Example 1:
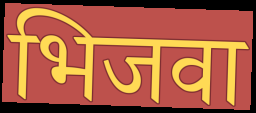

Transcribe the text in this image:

भिजवा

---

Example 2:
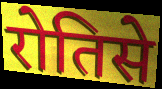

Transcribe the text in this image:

रोतिसे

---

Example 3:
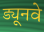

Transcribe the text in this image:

ड्यूनवे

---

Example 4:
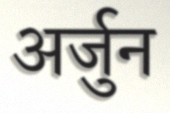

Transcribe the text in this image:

अर्जुन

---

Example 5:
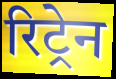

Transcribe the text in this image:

रिट्रेन